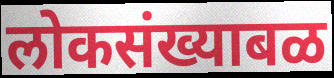
लोकसंख्याबळ